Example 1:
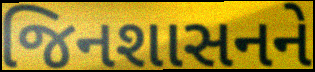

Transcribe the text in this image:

જિનશાસનને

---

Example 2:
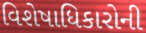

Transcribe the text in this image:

વિશેષાધિકારોની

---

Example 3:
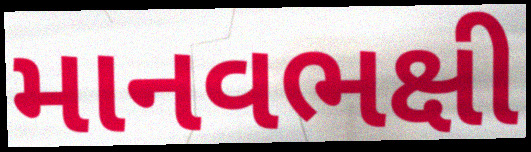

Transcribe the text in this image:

માનવભક્ષી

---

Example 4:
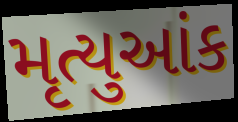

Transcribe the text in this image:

મૃત્યુઆંક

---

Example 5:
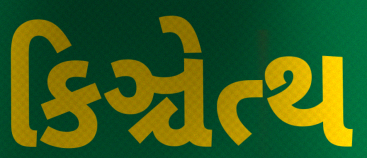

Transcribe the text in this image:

કિઞ્ચેત્થ